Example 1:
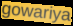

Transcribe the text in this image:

gowariya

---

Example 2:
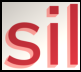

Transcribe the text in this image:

sil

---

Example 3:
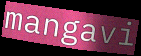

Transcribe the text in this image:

mangavi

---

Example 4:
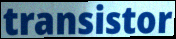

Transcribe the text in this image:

transistor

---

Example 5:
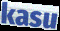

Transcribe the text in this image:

kasu